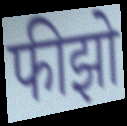
फीझो